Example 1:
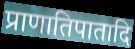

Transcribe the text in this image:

प्राणातिपातादि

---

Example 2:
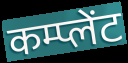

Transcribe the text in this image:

कम्प्लेंट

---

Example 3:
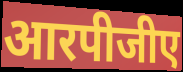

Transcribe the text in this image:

आरपीजीए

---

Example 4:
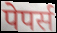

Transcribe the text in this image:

पेपर्स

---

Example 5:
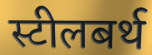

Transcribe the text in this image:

स्टीलबर्थ